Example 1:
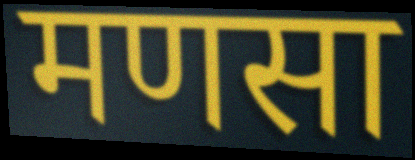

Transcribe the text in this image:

मणसा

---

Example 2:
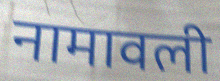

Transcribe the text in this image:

नामावली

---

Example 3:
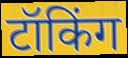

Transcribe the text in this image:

टॉकिंग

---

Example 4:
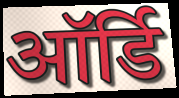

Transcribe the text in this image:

ऑर्डि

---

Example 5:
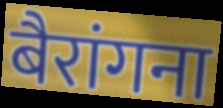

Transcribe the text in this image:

बैरांगना